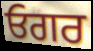
ਓਗਰ